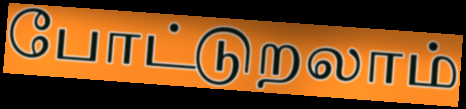
போட்டுறலாம்